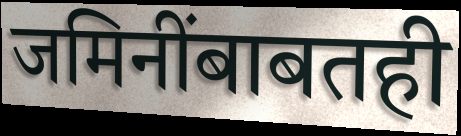
जमिनींबाबतही